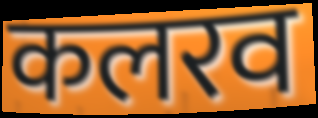
कलरव